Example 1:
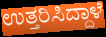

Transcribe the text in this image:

ಉತ್ತರಿಸಿದ್ದಾಳೆ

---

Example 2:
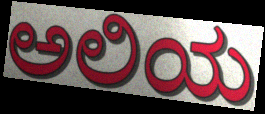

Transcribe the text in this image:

ಅಲಿಯ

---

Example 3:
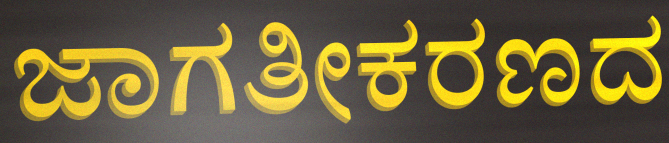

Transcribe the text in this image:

ಜಾಗತೀಕರಣದ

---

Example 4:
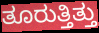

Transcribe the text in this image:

ತೂರುತ್ತಿತ್ತು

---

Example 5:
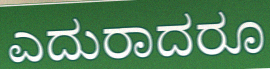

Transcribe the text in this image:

ಎದುರಾದರೂ